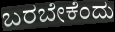
ಬರಬೇಕೆಂದು